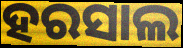
ହରସାଲ